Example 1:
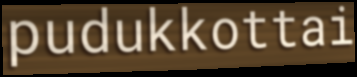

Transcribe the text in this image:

pudukkottai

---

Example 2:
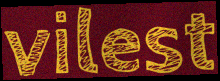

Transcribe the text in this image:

vilest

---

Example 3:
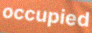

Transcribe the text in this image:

occupied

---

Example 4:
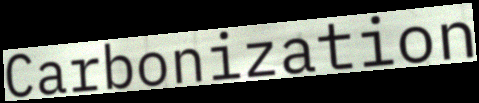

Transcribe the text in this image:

Carbonization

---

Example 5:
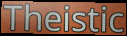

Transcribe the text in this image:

Theistic